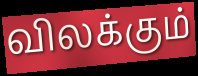
விலக்கும்